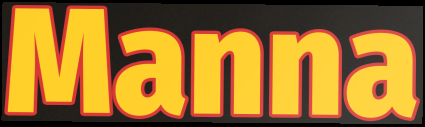
Manna